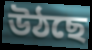
উঠছে